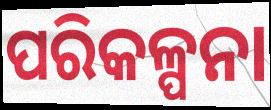
ପରିକଳ୍ପନା